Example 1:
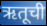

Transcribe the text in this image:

ॠतूची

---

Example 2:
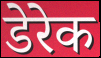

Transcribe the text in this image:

डेरेक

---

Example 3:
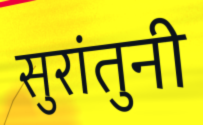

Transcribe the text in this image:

सुरांतुनी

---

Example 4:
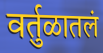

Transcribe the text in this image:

वर्तुळातलं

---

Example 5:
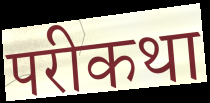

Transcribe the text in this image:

परीकथा